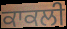
ਕਾਕਲੀ